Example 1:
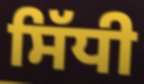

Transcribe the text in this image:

ਸਿੱਧੀ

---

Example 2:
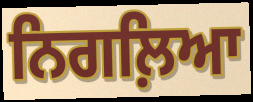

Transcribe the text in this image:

ਨਿਗਲ਼ਿਆ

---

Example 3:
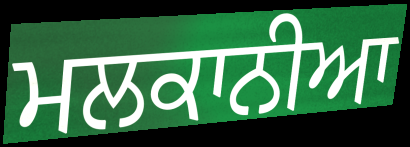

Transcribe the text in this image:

ਮਲਕਾਨੀਆ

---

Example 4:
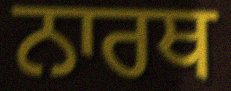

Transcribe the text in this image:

ਨਾਰਥ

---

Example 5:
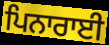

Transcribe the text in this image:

ਪਿਨਾਰਾਈ